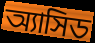
অ্যাসিড